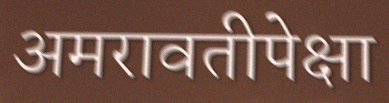
अमरावतीपेक्षा